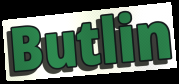
Butlin